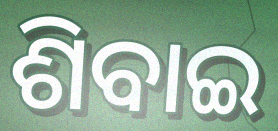
ଶିବାଇ